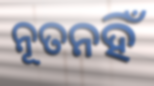
ନୂତନହିଁ